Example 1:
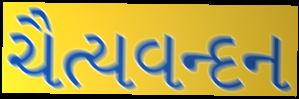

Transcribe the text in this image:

ચૈત્યવન્દન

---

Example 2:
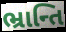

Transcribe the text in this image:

ભ્રાન્તિ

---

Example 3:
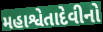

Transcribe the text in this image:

મહાશ્વેતાદેવીનો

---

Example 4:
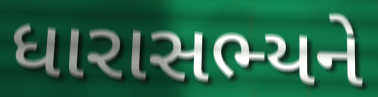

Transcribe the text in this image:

ધારાસભ્યને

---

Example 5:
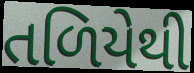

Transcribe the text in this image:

તળિયેથી